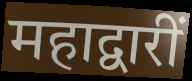
महाद्वारीं